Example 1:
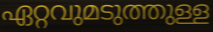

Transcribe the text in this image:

ഏറ്റവുമടുത്തുള്ള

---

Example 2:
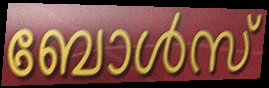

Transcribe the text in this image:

ബോൾസ്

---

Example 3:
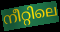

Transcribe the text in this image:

നീറ്റിലെ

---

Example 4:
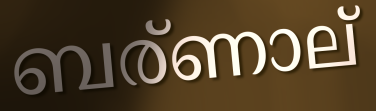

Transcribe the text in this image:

ബര്ണാല്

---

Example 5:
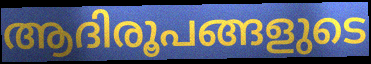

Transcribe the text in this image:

ആദിരൂപങ്ങളുടെ